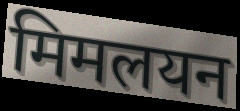
मिमलयन